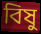
বিষু